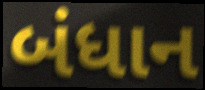
બંધાન